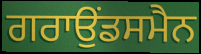
ਗਰਾਉਂਡਸਮੈਨ